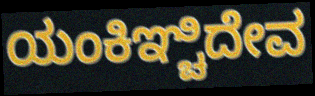
ಯಂಕಿಞ್ಚಿದೇವ